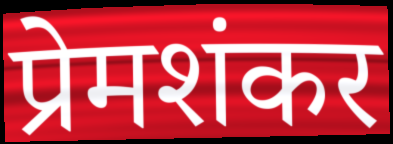
प्रेमशंकर